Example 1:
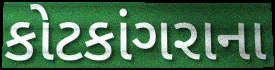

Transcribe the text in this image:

કોટકાંગરાના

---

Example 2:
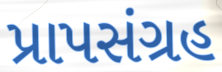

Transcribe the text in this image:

પ્રાપસંગ્રહ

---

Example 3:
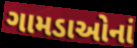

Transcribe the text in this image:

ગામડાઓનાં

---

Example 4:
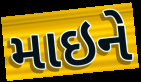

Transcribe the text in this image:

માઇને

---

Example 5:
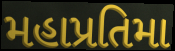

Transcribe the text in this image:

મહાપ્રતિમા